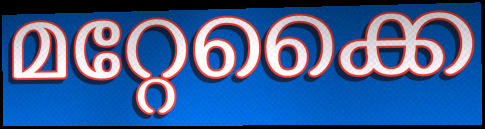
മറ്റേക്കൈ